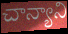
చాన్యాని